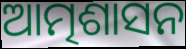
ଆତ୍ମଶାସନ